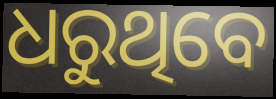
ଧରୁଥିବେ